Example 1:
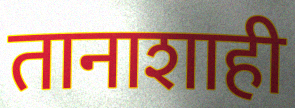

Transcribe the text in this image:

तानाशाही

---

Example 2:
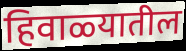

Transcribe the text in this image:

हिवाळ्यातील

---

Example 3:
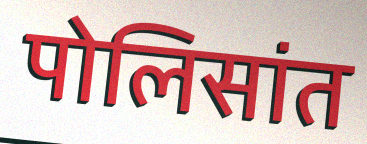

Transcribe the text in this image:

पोलिसांत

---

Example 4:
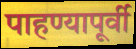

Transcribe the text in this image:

पाहण्यापूर्वी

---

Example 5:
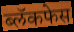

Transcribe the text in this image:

ब्लॅकफेस